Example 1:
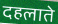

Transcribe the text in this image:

दहलाते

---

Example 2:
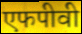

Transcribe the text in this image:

एफपीवी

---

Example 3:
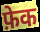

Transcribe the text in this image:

फ़ेक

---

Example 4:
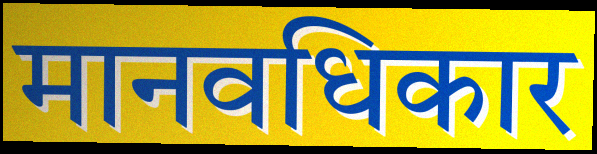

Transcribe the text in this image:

मानवधिकार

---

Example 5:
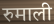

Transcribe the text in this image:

रुमाली